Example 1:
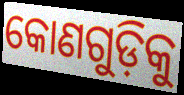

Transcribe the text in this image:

କୋଣଗୁଡ଼ିକୁ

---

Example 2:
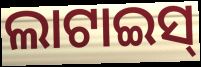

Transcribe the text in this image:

ଲାଟାଇସ୍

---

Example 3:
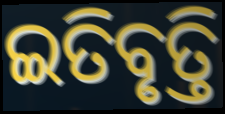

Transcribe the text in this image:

ଇତିବୃତ୍ତି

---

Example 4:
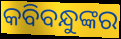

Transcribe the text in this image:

କବିବନ୍ଧୁଙ୍କର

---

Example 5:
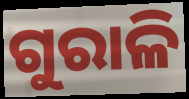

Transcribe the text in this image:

ଗୁରାଳି